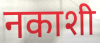
नकाशी